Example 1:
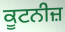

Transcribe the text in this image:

ਕੂਟਨੀਜ਼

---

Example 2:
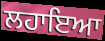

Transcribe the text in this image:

ਲਹਾਇਆ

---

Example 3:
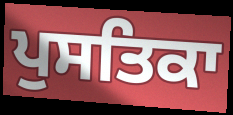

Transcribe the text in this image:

ਪੁਸਤਿਕਾ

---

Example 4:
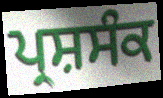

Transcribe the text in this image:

ਪ੍ਰਸ਼ਸੰਕ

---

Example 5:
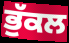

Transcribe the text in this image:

ਭੁੱਕਲ